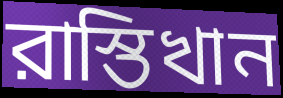
রাস্তিখান